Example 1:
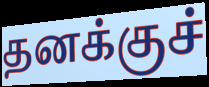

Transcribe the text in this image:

தனக்குச்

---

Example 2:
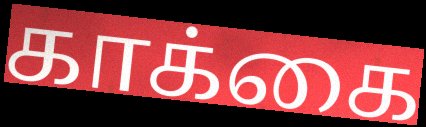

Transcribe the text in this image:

காக்கை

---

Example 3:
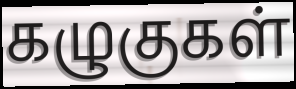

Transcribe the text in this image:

கழுகுகள்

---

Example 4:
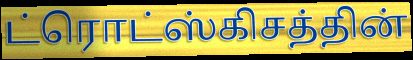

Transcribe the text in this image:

ட்ரொட்ஸ்கிசத்தின்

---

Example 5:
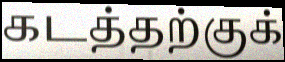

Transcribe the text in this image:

கடத்தற்குக்